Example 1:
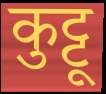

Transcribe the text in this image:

कुट्टू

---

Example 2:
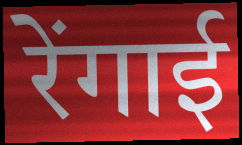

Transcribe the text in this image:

रेंगाई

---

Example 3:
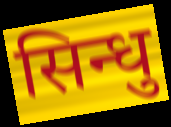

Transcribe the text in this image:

सिन्‍धु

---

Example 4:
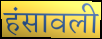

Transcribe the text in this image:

हंसावली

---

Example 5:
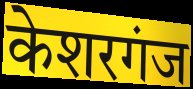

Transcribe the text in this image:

केशरगंज